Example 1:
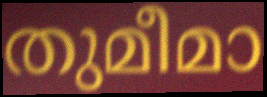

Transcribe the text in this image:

തുമീമാ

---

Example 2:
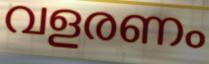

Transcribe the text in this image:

വളരണം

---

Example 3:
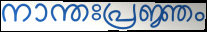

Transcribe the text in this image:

നാന്തഃപ്രജ്ഞം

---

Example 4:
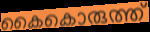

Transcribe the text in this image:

കൈകൊരുത്ത്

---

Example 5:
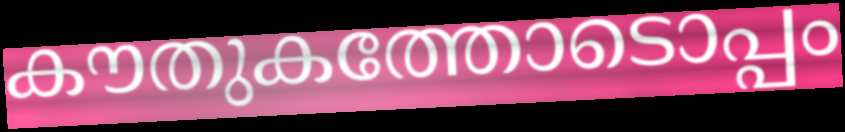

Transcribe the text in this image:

കൗതുകത്തോടൊപ്പം